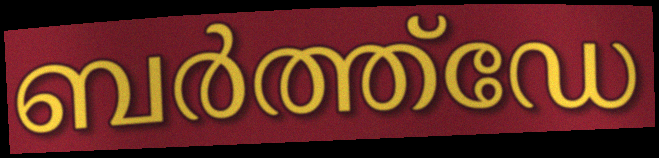
ബർത്ത്ഡേ